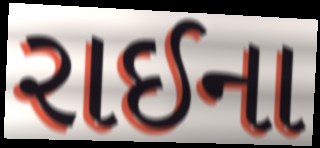
રાઈના